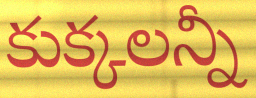
కుక్కలన్నీ